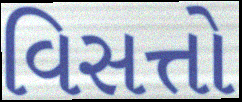
વિસત્તો